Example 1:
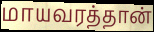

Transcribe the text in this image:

மாயவரத்தான்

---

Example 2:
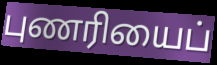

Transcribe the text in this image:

புணரியைப்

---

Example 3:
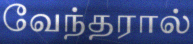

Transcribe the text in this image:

வேந்தரால்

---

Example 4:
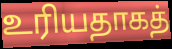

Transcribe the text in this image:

உரியதாகத்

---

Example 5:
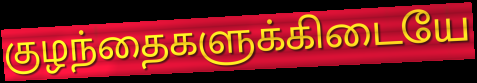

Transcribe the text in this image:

குழந்தைகளுக்கிடையே